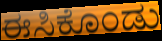
ಈಸಿಕೊಂಡು